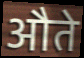
औते